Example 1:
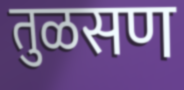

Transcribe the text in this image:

तुळसण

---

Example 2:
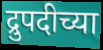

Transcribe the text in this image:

द्रुपदीच्या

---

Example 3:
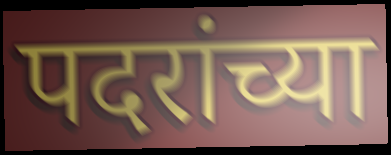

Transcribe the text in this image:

पदरांच्या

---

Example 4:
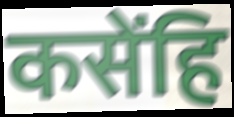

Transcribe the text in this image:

कसेंहि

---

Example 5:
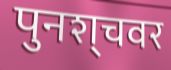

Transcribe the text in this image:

पुनश्चवर